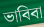
ভাবিবা